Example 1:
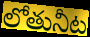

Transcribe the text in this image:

లోతునీట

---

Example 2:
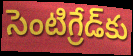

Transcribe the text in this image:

సెంటిగ్రేడ్‌కు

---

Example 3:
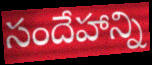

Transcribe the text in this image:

సందేహాన్ని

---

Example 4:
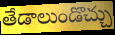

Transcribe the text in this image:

తేడాలుండొచ్చు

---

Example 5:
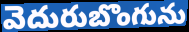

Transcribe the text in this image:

వెదురుబొంగును